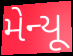
મેન્યૂ